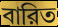
বারিত